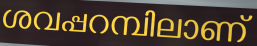
ശവപ്പറമ്പിലാണ്